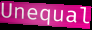
Unequal